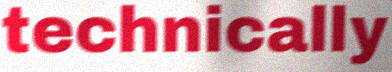
technically